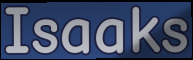
Isaaks